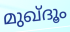
മുഖ്ദൂം